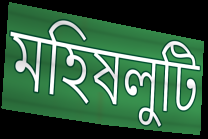
মহিষলুটি